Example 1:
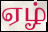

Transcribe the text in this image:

ஏழ்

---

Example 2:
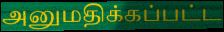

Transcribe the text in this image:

அனுமதிக்கப்பட்ட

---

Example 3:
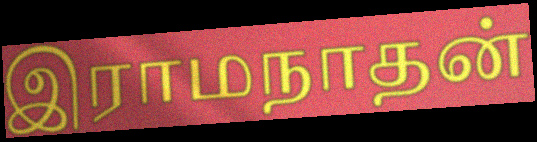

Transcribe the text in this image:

இராமநாதன்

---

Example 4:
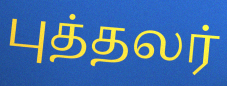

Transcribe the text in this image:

புத்தலர்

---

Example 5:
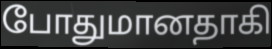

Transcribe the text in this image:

போதுமானதாகி